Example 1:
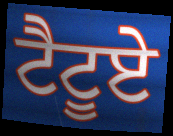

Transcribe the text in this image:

ਟੈਟੂਏ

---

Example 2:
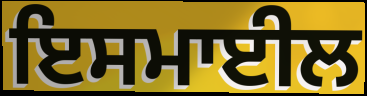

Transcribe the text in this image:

ਇਸਮਾਈਲ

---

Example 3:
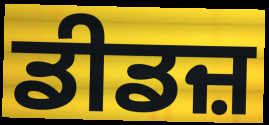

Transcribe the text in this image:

ਡੀਡਜ਼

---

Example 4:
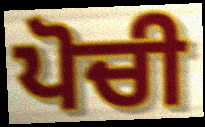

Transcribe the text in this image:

ਪੋਚੀ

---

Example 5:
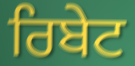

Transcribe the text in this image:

ਰਿਬੇਟ